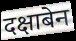
दक्षाबेन